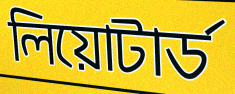
লিয়োটার্ড